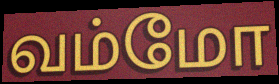
வம்மோ